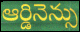
ఆర్డినెన్సు